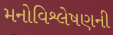
મનોવિશ્લેષણની